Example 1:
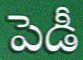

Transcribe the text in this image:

పెడీ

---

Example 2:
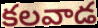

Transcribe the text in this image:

కలవాడ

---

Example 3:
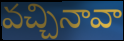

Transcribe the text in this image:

వచ్చినావా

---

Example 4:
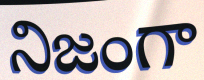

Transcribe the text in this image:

నిజంగా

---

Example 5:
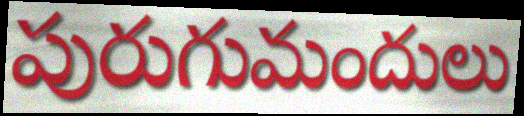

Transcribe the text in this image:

పురుగుమందులు